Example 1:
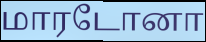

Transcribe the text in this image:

மாரடோனா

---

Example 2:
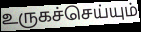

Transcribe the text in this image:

உருகச்செய்யும்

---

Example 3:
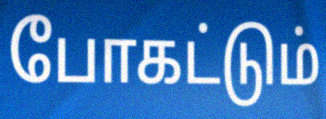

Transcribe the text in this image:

போகட்டும்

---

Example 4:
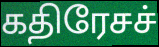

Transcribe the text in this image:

கதிரேசச்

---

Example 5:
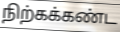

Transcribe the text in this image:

நிற்கக்கண்ட